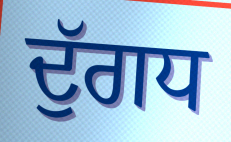
ਦੁੱਗਧ